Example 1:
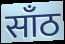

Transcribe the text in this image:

साँठ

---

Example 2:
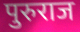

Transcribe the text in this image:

पुरुराज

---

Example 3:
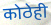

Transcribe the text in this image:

कोठेही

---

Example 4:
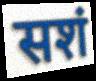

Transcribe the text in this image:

सशं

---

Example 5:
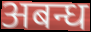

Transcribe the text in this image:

अबन्ध